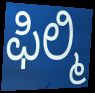
ಫಿಲ್ಮಿ